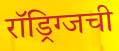
रॉड्रिग्जची